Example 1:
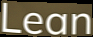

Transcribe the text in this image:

Lean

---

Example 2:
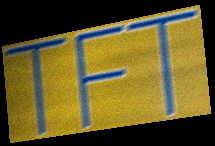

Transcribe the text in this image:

TFT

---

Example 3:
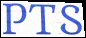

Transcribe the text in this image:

PTS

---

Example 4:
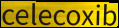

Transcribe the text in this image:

celecoxib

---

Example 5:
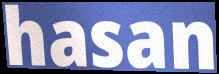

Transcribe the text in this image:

hasan